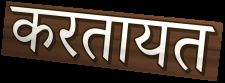
करतायत